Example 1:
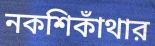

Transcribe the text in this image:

নকশিকাঁথার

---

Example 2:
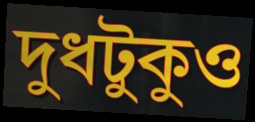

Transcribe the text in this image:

দুধটুকুও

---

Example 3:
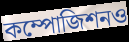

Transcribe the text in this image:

কম্পোজিশনও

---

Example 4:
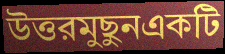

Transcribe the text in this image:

উত্তরমুছুনএকটি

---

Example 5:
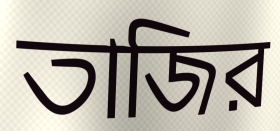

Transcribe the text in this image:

তাজির